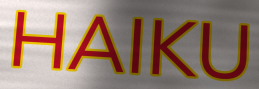
HAIKU